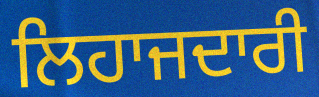
ਲਿਹਾਜਦਾਰੀ